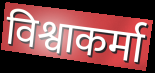
विश्वाकर्मा